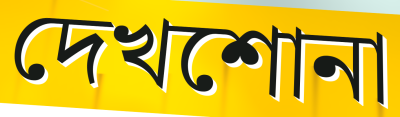
দেখশোনা